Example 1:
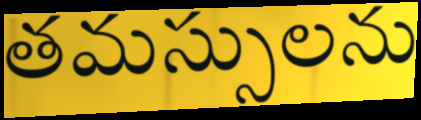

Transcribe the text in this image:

తమస్సులను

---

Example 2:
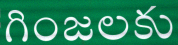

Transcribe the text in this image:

గింజలకు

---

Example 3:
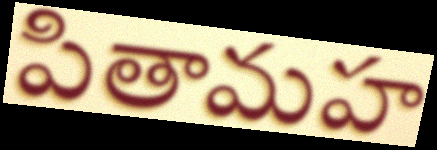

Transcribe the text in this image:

పితామహ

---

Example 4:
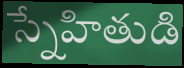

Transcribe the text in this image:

స్నేహితుడి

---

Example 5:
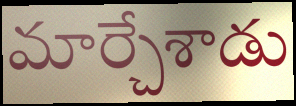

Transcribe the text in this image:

మార్చేశాడు